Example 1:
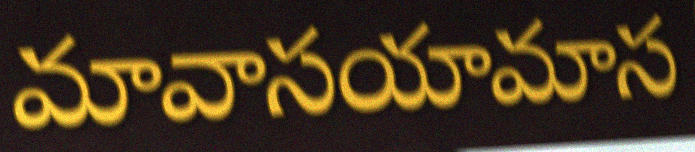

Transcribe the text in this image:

మావాసయామాస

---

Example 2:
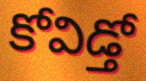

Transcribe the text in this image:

కోవిడ్తో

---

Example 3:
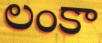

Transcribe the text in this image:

లంకా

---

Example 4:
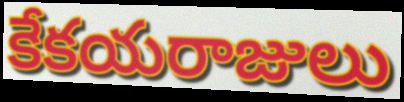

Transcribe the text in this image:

కేకయరాజులు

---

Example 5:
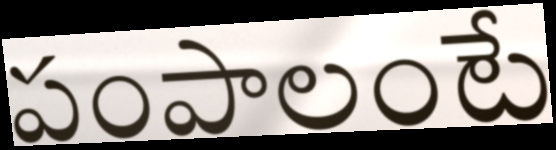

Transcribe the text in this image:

పంపాలంటే